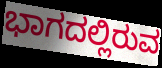
ಭಾಗದಲ್ಲಿರುವ